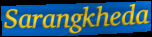
Sarangkheda